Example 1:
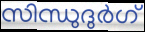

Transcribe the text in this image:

സിന്ധുദുർഗ്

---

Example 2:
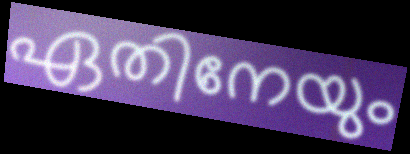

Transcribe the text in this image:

ഏതിനേയും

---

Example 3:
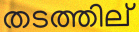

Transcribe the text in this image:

തടത്തില്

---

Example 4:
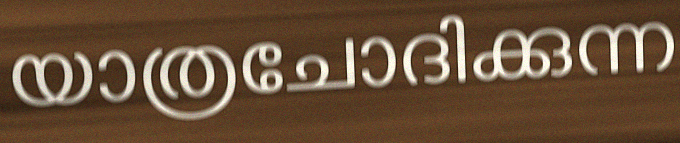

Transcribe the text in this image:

യാത്രചോദിക്കുന്ന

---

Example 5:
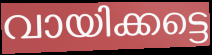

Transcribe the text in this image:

വായിക്കട്ടെ